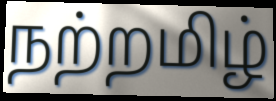
நற்றமிழ்